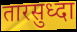
तारसुध्दा